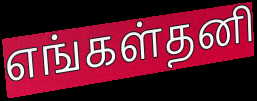
எங்கள்தனி